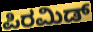
ಪಿರಮಿಡ್